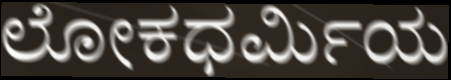
ಲೋಕಧರ್ಮಿಯ